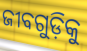
ଜୀବଗୁଡ଼ିକୁ